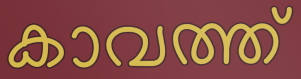
കാവത്ത്